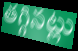
తగ్గినట్లు